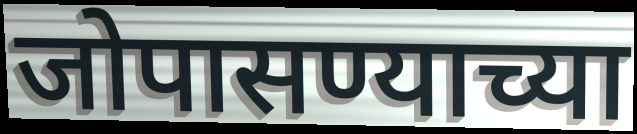
जोपासण्याच्या